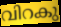
വിറകു